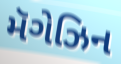
મૅગેઝિન